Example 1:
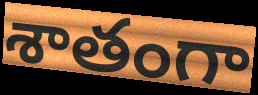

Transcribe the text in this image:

శాతంగా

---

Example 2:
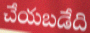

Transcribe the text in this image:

చేయబడేది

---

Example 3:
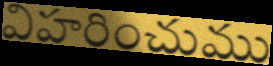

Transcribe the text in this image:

విహరించుము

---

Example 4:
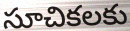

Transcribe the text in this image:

సూచికలకు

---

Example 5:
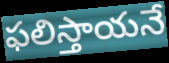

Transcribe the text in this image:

ఫలిస్తాయనే